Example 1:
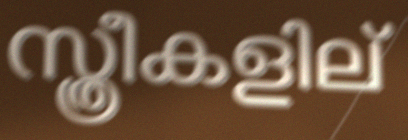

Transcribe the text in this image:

സ്ത്രീകളില്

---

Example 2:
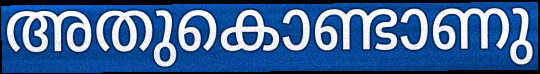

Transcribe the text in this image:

അതുകൊണ്ടാണു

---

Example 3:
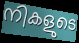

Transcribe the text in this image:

നികളുടെ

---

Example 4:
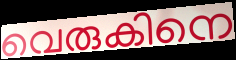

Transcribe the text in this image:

വെരുകിനെ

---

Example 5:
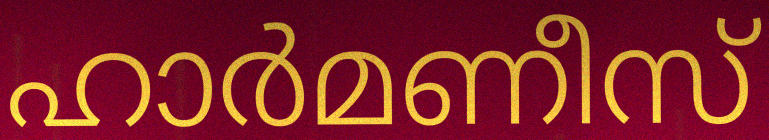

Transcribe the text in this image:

ഹാർമണീസ്